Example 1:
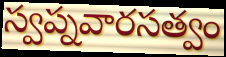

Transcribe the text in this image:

స్వప్నవారసత్వం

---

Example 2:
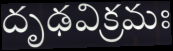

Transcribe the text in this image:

దృఢవిక్రమః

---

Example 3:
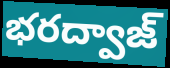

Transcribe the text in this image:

భరద్వాజ్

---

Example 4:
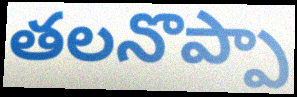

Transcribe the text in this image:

తలనొప్పా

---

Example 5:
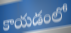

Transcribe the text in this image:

కాయడంలో